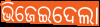
ଭିଜେଇଦେଲା